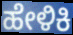
ಹೇಳಿಕಿ